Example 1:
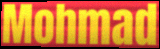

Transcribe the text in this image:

Mohmad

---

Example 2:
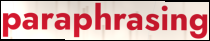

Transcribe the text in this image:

paraphrasing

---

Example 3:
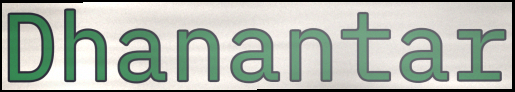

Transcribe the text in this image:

Dhanantar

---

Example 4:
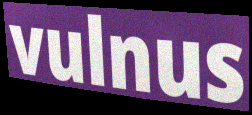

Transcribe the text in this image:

vulnus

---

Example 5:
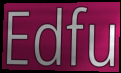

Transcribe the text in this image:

Edfu